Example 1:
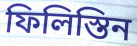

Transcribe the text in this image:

ফিলিস্তিন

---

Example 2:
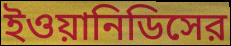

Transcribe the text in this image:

ইওয়ানিডিসের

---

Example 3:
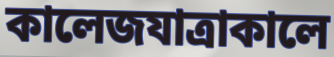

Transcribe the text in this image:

কালেজযাত্রাকালে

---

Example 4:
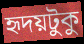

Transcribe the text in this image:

হৃদয়টুকু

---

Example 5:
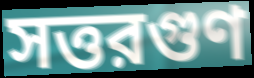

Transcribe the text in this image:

সত্তরগুণ